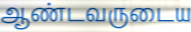
ஆண்டவருடைய